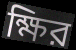
ক্ষির